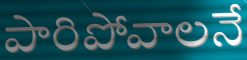
పారిపోవాలనే